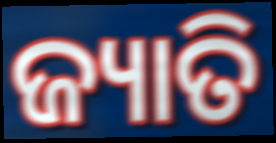
ଜ୍ୟାତି